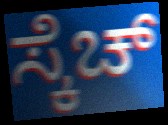
ಸ್ಕೆಚ್